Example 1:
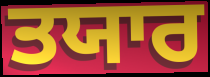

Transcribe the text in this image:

ਤਯਾਰ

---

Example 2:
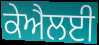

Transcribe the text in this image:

ਕੇਐਲਈ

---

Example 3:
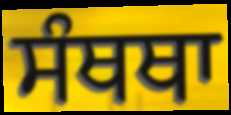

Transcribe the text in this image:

ਸੰਥਥਾ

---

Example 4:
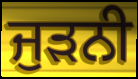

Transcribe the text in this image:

ਜੁੜਨੀ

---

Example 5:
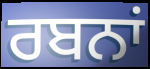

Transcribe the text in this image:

ਰਬਨਾਂ